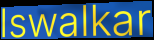
Iswalkar